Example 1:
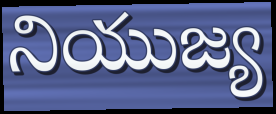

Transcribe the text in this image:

నియుజ్య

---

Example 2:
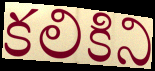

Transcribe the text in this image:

కలికిని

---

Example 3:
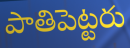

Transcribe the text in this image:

పాతిపెట్టరు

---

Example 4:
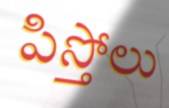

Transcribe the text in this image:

పిస్తోలు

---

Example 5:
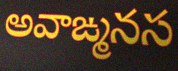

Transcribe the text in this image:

అవాఙ్మనస